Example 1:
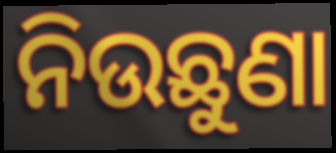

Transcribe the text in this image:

ନିଉଛୁଣା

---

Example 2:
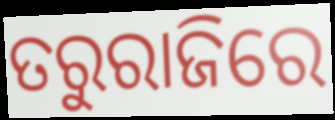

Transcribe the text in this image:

ତରୁରାଜିରେ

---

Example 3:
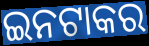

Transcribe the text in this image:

ଇନଟାକର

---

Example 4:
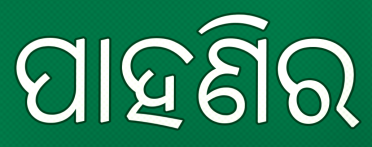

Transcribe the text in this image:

ପାହଣିର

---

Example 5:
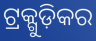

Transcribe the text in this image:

ଟ୍ରକ୍ଗୁଡ଼ିକର